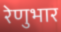
रेणुभार